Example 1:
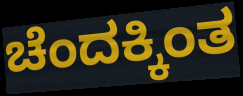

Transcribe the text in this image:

ಚೆಂದಕ್ಕಿಂತ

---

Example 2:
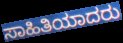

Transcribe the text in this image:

ಸಾಹಿತಿಯಾದರು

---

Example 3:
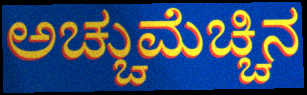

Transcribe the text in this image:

ಅಚ್ಚುಮೆಚ್ಚಿನ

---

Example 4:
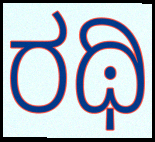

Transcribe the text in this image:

ರಥಿ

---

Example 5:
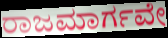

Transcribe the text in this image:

ರಾಜಮಾರ್ಗವೇ